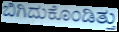
ಬಿಗಿದುಕೊಂಡಿತ್ತು